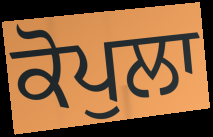
ਕੋਪੁਲਾ